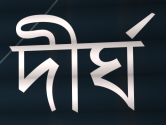
দীর্ঘ